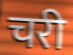
चरी